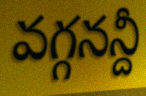
వగ్గనన్దీ